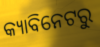
କ୍ୟାବିନେଟରୁ